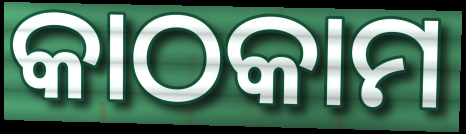
କାଠକାମ